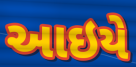
આઇયે